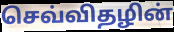
செவ்விதழின்